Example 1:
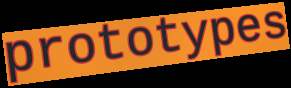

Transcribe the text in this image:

prototypes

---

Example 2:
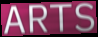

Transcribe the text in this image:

ARTS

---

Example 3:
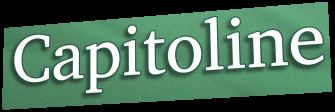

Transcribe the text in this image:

Capitoline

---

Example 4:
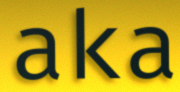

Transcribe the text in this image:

aka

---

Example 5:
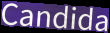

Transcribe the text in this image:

Candida